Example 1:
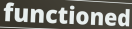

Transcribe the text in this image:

functioned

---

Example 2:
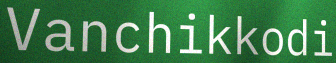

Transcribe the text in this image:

Vanchikkodi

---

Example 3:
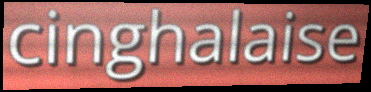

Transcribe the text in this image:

cinghalaise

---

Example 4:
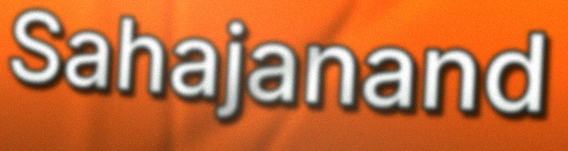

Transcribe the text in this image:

Sahajanand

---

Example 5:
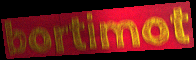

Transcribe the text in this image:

bortimot